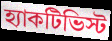
হ্যাকটিভিস্ট